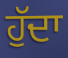
ਹੁੱਦਾ